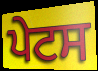
ਪੇਟਸ